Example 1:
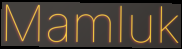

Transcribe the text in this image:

Mamluk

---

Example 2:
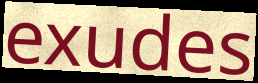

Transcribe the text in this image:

exudes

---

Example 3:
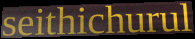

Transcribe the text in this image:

seithichurul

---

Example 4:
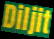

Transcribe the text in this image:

Diljit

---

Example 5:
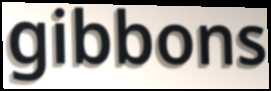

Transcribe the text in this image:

gibbons